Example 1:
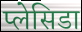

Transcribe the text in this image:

प्लेसिडा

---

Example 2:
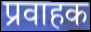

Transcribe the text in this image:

प्रवाहक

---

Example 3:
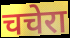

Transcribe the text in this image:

चचेरा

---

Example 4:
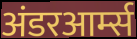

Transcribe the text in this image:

अंडरआर्म्‍स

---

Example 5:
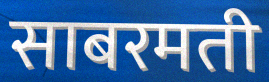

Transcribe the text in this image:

साबरमती